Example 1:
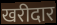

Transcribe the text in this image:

खरीदार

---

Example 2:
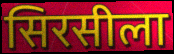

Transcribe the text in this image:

सिरसीला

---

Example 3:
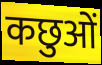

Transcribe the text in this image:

कछुओं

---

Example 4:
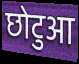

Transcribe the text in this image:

छोटुआ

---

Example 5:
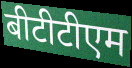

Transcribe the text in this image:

बीटीटीएम